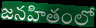
జనహితంలో